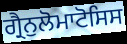
ਗ੍ਰੈਨੁਲੋਮਾਟੋਸਿਸ